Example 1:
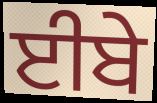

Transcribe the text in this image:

ਈਬੇ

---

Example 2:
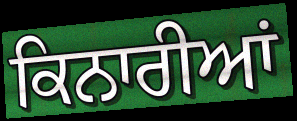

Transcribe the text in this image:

ਕਿਨਾਰੀਆਂ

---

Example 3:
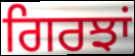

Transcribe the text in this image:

ਗਿਰਝਾਂ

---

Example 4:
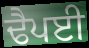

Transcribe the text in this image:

ਢੈਪਈ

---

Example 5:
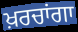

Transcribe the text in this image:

ਖ਼ਰਚਾਂਗਾ